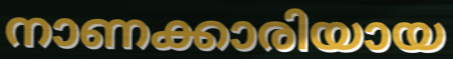
നാണക്കാരിയായ